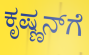
ಕೃಷ್ಣನ್‌ಗೆ